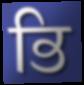
ਭਿ